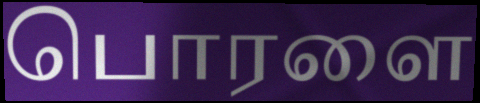
பொரளை